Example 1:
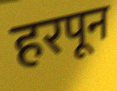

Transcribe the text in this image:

हरपून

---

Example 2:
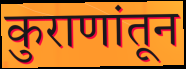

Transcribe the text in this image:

कुराणांतून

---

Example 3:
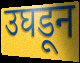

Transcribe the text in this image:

उघडून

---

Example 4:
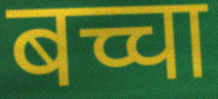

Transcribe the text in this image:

बच्चा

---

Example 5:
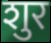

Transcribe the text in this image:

शुर